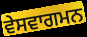
ਵੇਸਵਾਗਮਨ